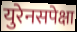
युरेनसपेक्षा